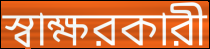
স্বাক্ষরকারী